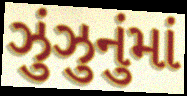
ઝુંઝુનુંમાં